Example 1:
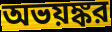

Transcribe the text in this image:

অভয়ঙ্কর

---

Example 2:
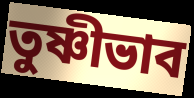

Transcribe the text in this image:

তুষ্ণীভাব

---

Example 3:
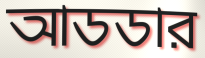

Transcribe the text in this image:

আডডার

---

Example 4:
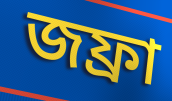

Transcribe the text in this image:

জফ্রা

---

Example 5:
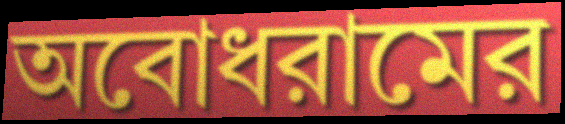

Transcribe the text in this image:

অবোধরামের